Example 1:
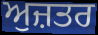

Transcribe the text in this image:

ਅੁਜ਼ਤਰ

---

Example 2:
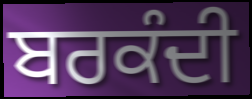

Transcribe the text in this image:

ਬਰਕੰਦੀ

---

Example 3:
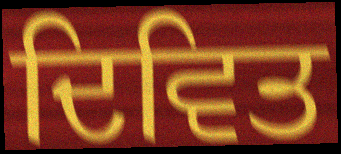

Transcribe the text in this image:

ਦਿਵਿਤ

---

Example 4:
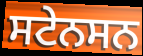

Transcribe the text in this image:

ਸਟੇਨਸਨ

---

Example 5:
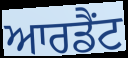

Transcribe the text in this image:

ਆਰਡੈਂਟ